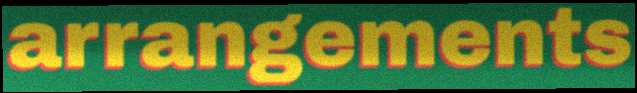
arrangements